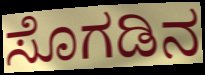
ಸೊಗಡಿನ